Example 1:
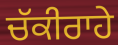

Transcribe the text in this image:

ਚੱਕੀਰਾਹੇ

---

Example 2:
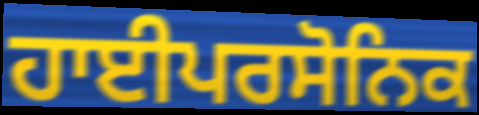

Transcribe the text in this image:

ਹਾਈਪਰਸੋਨਿਕ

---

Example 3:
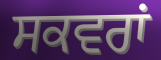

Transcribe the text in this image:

ਸਕਵਰਾਂ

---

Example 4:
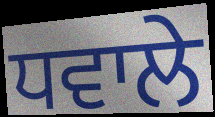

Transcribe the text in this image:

ਧਵਾਲੇ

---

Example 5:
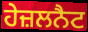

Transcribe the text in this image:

ਹੇਜ਼ਲਨੈਟ